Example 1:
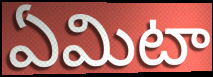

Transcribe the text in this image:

ఏమిటా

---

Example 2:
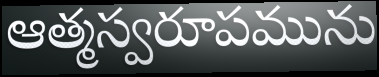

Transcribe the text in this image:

ఆత్మస్వరూపమును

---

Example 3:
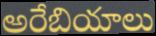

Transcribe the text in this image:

అరేబియాలు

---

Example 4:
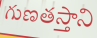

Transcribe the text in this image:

గుణతస్తాని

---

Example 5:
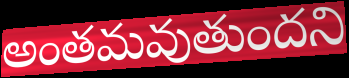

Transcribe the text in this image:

అంతమవుతుందని